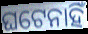
ଘଟେନାହିଁ